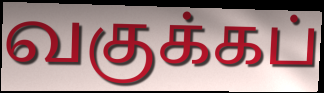
வகுக்கப்